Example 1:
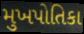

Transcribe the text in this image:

મુખપોતિકા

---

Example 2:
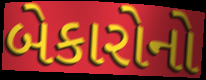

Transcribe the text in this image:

બેકારોનો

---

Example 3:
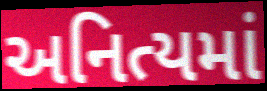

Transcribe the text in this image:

અનિત્યમાં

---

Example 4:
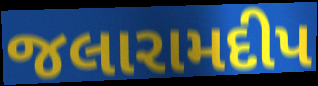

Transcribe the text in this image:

જલારામદીપ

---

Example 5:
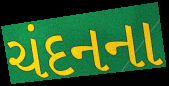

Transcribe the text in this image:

ચંદનના